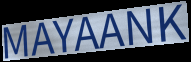
MAYAANK